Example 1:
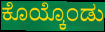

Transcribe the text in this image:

ಕೊಯ್ಕೊಂಡು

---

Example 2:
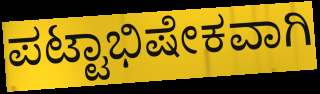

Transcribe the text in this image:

ಪಟ್ಟಾಭಿಷೇಕವಾಗಿ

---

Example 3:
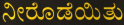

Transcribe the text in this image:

ನೀರೊಡೆಯಿತು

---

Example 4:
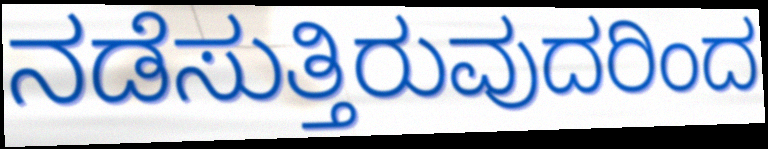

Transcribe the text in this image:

ನಡೆಸುತ್ತಿರುವುದರಿಂದ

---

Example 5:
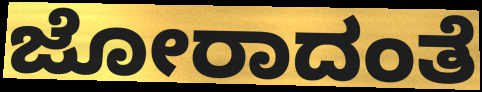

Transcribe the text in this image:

ಜೋರಾದಂತೆ